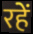
रहें